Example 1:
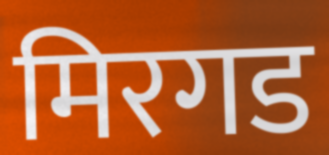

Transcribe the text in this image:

मिरगड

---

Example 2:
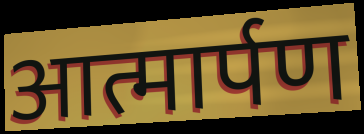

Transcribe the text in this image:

आत्मार्पण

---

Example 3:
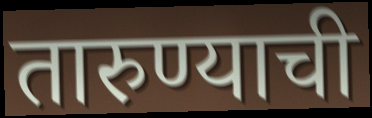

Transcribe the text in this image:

तारुण्याची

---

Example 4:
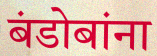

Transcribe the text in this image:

बंडोबांना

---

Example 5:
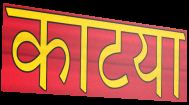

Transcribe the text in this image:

काटया